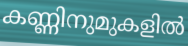
കണ്ണിനുമുകളിൽ